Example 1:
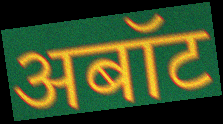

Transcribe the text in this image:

अबॉट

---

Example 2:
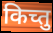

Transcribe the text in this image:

किच्तु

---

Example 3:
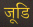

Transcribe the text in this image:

जूडि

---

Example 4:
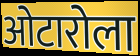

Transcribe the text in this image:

ओटारोला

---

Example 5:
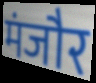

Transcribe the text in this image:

मंजौर